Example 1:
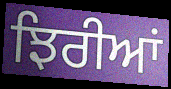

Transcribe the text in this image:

ਝਿਰੀਆਂ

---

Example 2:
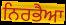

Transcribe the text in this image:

ਨਿਰਭੈਆ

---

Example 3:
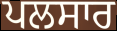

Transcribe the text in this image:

ਪਲਸਾਰ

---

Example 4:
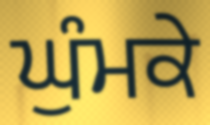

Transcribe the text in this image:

ਘੁੰਮਕੇ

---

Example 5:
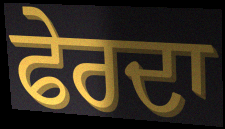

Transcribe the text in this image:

ਫੇਰਦਾ